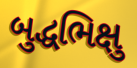
બુદ્ધભિક્ષુ